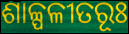
ଶାଳ୍ପଳୀତରୂଃ